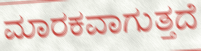
ಮಾರಕವಾಗುತ್ತದೆ